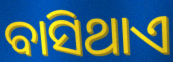
ବାସିଥାଏ